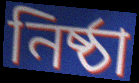
নিষ্ঠা